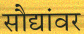
सौद्यांवर